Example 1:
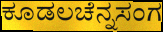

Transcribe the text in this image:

ಕೂಡಲಚೆನ್ನಸಂಗ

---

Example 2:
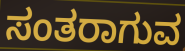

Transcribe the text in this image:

ಸಂತರಾಗುವ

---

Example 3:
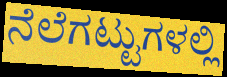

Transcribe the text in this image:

ನೆಲೆಗಟ್ಟುಗಳಲ್ಲಿ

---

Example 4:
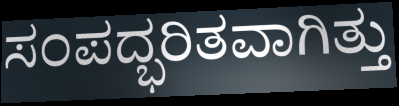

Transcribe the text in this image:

ಸಂಪದ್ಭರಿತವಾಗಿತ್ತು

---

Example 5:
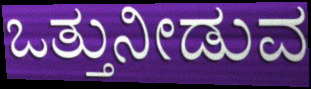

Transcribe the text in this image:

ಒತ್ತುನೀಡುವ